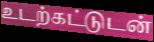
உடற்கட்டுடன்